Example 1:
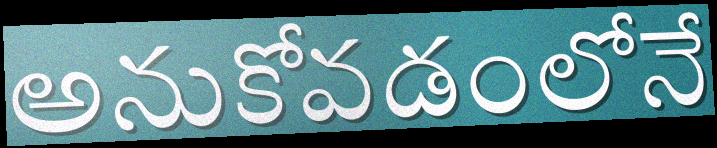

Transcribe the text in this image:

అనుకోవడంలోనే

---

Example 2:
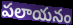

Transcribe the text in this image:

పలాయనం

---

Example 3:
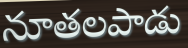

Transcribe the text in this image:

నూతలపాడు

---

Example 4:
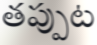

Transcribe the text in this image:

తప్పుట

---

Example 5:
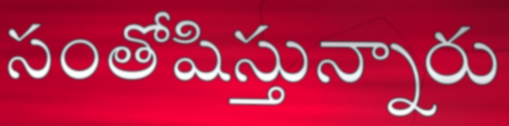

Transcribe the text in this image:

సంతోషిస్తున్నారు